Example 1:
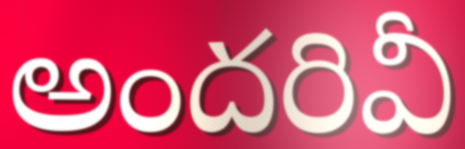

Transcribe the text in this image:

అందరివీ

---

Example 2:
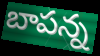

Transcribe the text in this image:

బాపన్న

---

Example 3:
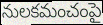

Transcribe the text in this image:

నులకమంచంపై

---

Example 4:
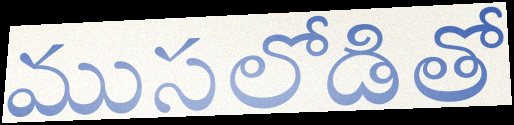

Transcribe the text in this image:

ముసలోడితో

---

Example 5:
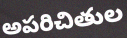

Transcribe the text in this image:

అపరిచితుల